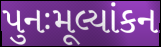
પુનઃમૂલ્યાંકન